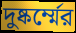
দুষ্কর্ম্মের